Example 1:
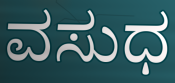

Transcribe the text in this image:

ವಸುಧ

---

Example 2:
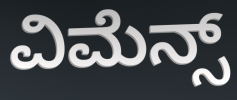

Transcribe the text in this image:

ವಿಮೆನ್ಸ್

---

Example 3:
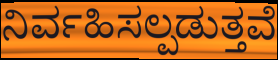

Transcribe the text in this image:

ನಿರ್ವಹಿಸಲ್ಪಡುತ್ತವೆ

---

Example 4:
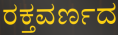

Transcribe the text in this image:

ರಕ್ತವರ್ಣದ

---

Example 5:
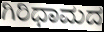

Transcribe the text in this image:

ಗಿರಿಧಾಮದ